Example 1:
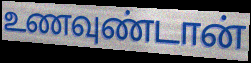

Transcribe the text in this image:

உணவுண்டான்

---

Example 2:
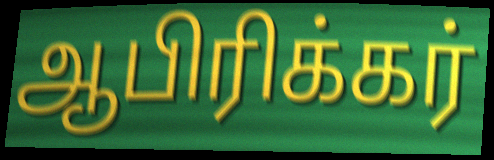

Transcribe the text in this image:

ஆபிரிக்கர்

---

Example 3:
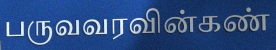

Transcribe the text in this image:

பருவவரவின்கண்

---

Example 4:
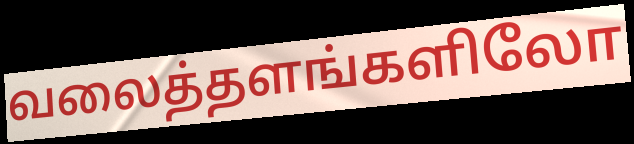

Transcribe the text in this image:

வலைத்தளங்களிலோ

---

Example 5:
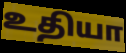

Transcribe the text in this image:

உதியா